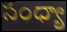
సంధ్యా